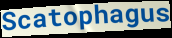
Scatophagus